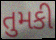
તુમકી